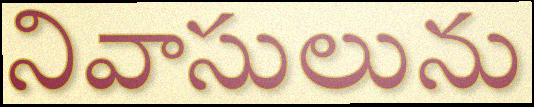
నివాసులును